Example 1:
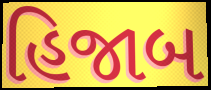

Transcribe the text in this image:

હિજાબ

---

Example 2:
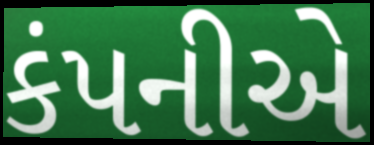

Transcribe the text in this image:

કંપનીએ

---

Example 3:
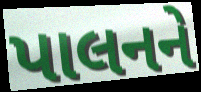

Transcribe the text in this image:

પાલનને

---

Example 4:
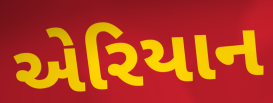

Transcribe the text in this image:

એરિયાન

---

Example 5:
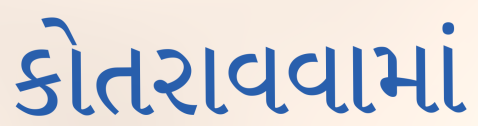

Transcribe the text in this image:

કોતરાવવામાં